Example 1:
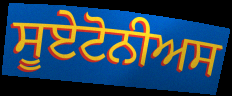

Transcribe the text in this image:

ਸੂਏਟੋਨੀਅਸ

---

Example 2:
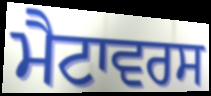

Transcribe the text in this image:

ਮੈਟਾਵਰਸ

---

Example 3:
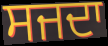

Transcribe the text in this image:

ਸਜਦਾ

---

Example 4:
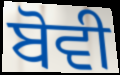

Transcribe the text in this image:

ਬੋਵੀ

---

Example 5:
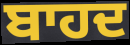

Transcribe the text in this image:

ਬਾਹਦ